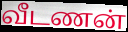
வீடணன்